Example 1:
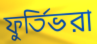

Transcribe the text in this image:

ফুর্তিভরা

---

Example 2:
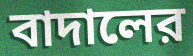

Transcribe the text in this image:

বাদালের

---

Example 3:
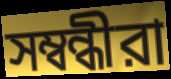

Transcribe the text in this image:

সম্বন্ধীরা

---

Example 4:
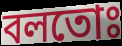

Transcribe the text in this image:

বলতোঃ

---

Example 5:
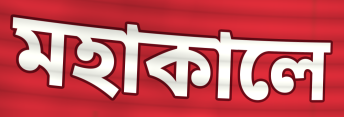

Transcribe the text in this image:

মহাকালে